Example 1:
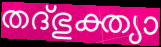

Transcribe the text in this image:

തദ്ഭുക്ത്യാ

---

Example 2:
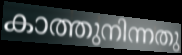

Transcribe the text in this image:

കാത്തുനിന്നതു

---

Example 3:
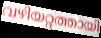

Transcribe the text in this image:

വഴിയറ്റത്തായി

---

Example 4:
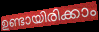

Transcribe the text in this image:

ഉണ്ടായിരിക്കാം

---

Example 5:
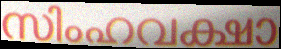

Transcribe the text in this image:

സിംഹവക്ഷാ